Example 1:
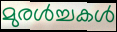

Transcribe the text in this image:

മുരൾച്ചകൾ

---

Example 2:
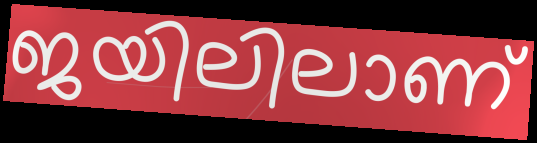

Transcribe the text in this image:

ജയിലിലാണ്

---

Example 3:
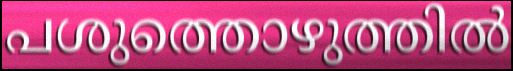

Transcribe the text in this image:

പശുത്തൊഴുത്തിൽ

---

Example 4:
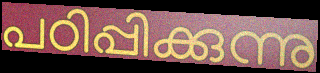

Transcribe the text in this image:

പഠിപ്പിക്കുന്നു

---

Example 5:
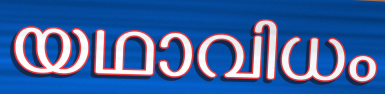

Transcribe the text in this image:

യഥാവിധം